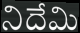
నిదేమి